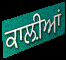
ਕਾਲ਼ੀਆਂ